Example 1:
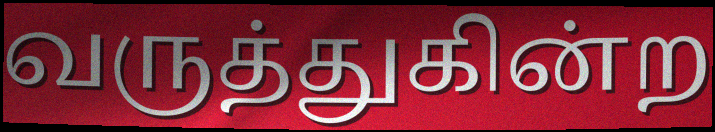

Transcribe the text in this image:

வருத்துகின்ற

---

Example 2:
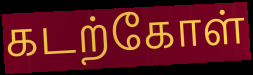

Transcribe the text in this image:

கடற்கோள்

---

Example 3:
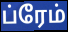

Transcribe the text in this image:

ப்ரேம்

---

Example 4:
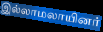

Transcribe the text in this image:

இல்லாமலாயினர்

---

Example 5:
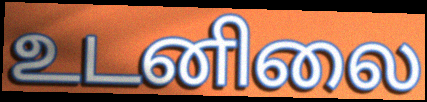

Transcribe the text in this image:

உடனிலை